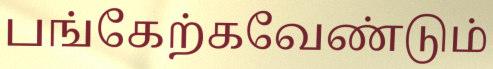
பங்கேற்கவேண்டும்